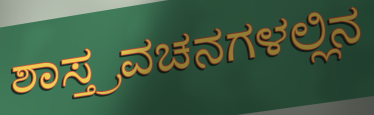
ಶಾಸ್ತ್ರವಚನಗಳಲ್ಲಿನ